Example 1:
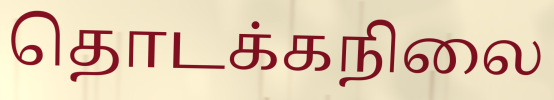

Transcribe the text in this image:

தொடக்கநிலை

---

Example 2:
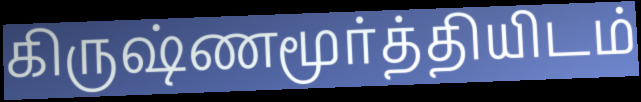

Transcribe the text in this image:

கிருஷ்ணமூர்த்தியிடம்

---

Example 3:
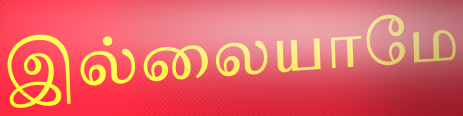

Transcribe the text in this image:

இல்லையாமே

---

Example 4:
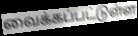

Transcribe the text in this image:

வைக்கப்பட்டுள்ள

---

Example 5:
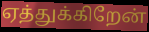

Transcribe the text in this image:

ஏத்துக்கிறேன்